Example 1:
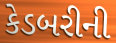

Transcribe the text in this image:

કેડબરીની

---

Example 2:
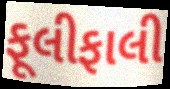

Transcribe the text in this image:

ફૂલીફાલી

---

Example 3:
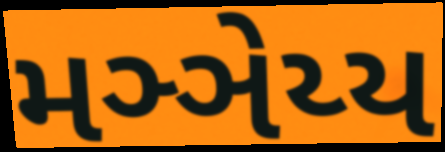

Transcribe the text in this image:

મઞ્ઞેય્ય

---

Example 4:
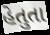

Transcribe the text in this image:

હેતુતા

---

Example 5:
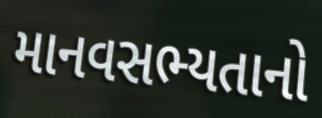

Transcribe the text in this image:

માનવસભ્યતાનો